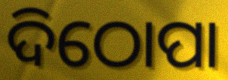
ଦିଠୋପା